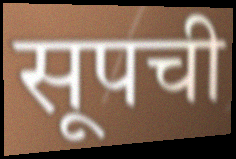
सूपची